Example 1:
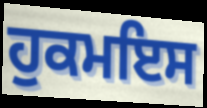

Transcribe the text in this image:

ਹੁਕਮਇਸ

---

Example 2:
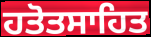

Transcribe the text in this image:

ਹਤੋਤਸਾਹਿਤ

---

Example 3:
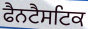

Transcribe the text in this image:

ਫੈਨਟੈਸਟਿਕ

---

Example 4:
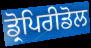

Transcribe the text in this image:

ਡ੍ਰੋਪਿਰੀਡੋਲ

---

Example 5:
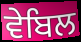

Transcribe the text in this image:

ਵੇਬਿਲ